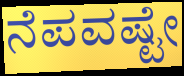
ನೆಪವಷ್ಟೇ